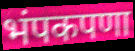
भंपकपणा